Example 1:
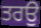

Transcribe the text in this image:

ਤਰਉ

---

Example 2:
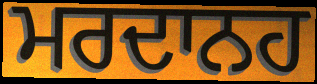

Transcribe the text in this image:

ਮਰਦਾਨਹ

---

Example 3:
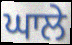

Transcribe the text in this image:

ਘਾਲੇ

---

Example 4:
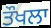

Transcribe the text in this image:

ਤੌਖਲਾ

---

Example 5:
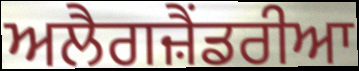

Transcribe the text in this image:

ਅਲੈਗਜ਼ੈਂਡਰੀਆ